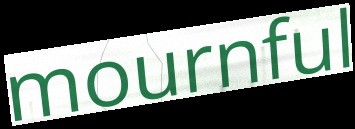
mournful